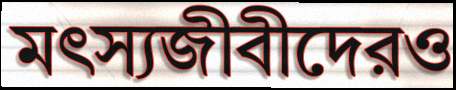
মৎস্যজীবীদেরও